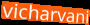
vicharvani